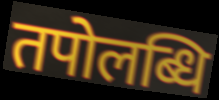
तपोलब्धि